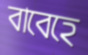
বাবেহে